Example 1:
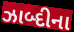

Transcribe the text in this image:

ઝાબ્દીના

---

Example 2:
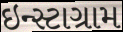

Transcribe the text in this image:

ઇન્સ્ટાગ્રામ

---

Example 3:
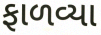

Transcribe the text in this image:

ફાળવ્યા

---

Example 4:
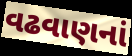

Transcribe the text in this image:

વઢવાણનાં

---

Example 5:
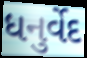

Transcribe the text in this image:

ધનુર્વેદ